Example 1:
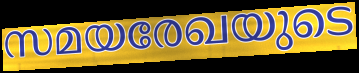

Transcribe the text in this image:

സമയരേഖയുടെ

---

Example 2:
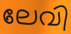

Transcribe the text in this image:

ലേവി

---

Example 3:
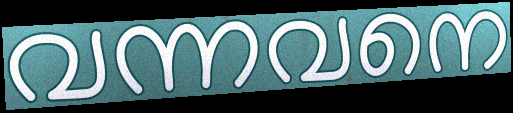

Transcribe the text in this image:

വന്നവനെ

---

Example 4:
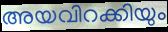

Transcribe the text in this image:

അയവിറക്കിയും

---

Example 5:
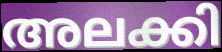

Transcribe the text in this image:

അലക്കി